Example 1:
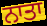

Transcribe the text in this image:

ਨਾਤਾ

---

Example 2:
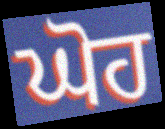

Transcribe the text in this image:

ਘੋਹ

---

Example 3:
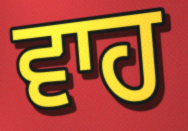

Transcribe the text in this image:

ਵਾਹ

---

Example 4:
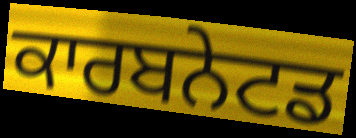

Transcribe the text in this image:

ਕਾਰਬਨੇਟਡ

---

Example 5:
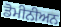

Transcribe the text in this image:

ਡੋਮੀਨੀਅਨ